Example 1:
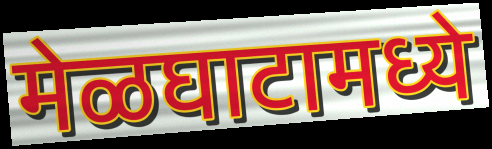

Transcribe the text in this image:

मेळघाटामध्ये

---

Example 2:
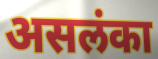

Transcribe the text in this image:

असलंका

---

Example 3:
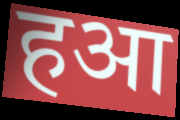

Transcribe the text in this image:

हआ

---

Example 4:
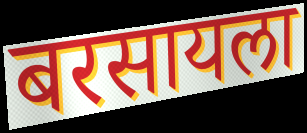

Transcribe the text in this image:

बरसायला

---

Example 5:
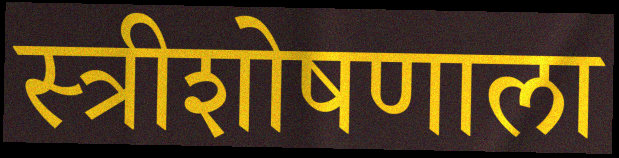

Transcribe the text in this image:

स्त्रीशोषणाला